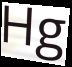
Hg